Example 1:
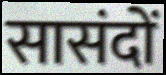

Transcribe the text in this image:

सासंदों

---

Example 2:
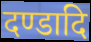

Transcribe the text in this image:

दण्डादि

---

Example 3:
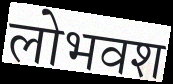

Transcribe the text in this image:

लोभवश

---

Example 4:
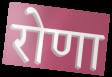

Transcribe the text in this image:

रोणा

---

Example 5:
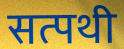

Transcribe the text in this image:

सत्पथी